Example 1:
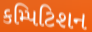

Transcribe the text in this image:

કમ્પિટિશન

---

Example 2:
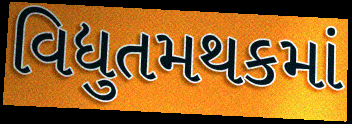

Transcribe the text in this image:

વિદ્યુતમથકમાં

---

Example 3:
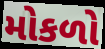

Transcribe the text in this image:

મોકળો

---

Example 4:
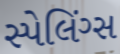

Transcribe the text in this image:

સ્પેલિંગ્સ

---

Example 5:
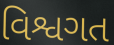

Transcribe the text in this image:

વિશ્વગત